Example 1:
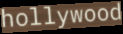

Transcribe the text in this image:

hollywood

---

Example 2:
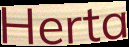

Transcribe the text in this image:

Herta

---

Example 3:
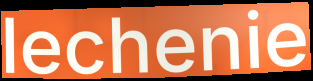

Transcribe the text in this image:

lechenie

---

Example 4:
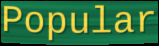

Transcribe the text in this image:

Popular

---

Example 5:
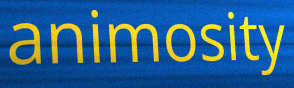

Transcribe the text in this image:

animosity